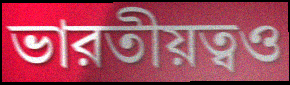
ভারতীয়ত্বও